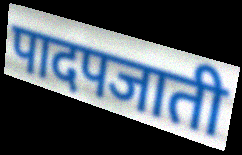
पादपजाती